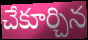
చేకూర్చిన